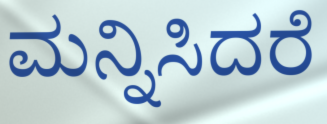
ಮನ್ನಿಸಿದರೆ